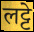
लट्टे